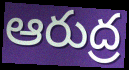
ఆరుద్ర